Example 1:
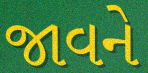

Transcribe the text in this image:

જાવને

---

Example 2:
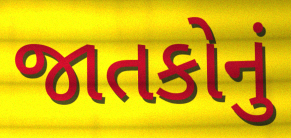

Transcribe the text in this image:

જાતકોનું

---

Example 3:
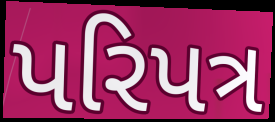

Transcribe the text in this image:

પરિપત્ર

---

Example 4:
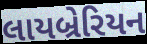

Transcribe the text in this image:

લાયબ્રેરિયન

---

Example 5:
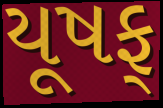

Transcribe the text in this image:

યૂષફ્